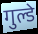
गुल्डे